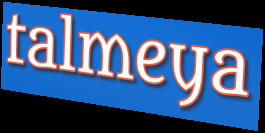
talmeya